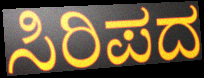
ಸಿರಿಪದ